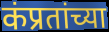
कंप्रतांच्या